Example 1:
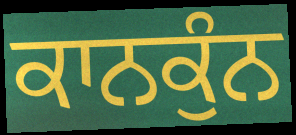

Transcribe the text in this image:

ਕਾਨਕੁੰਨ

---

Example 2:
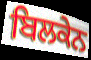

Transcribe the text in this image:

ਬਿਲਕੇਨ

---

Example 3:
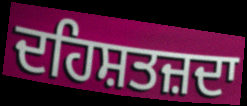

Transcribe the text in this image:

ਦਹਿਸ਼ਤਜ਼ਦਾ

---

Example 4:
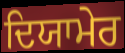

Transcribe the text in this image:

ਦਿਯਾਮੇਰ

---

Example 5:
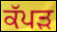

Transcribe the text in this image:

ਕੱਪੜ